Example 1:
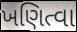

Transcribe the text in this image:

ખણિત્વા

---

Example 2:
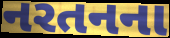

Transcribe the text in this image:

નરતનના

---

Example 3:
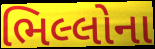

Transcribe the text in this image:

ભિલ્લોના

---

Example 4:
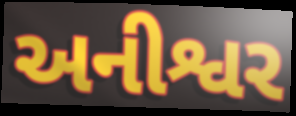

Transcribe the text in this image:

અનીશ્વર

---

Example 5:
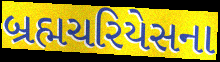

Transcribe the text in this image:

બ્રહ્મચરિયેસના